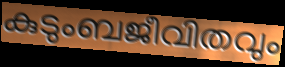
കുടുംബജീവിതവും